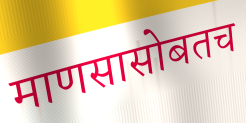
माणसासोबतच